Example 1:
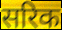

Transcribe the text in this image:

सरिक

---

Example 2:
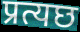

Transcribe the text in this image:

प्रत्यछ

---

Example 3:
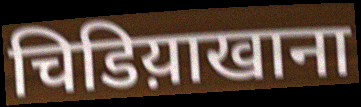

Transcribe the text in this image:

चिडिय़ाखाना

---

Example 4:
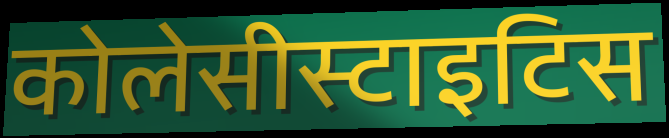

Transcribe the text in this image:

कोलेसीस्टाइटिस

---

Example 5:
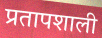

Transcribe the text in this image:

प्रतापशाली